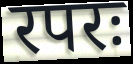
रपरः